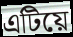
এটিয়ে